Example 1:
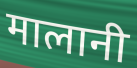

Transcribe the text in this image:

मालानी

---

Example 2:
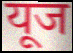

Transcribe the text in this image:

यूज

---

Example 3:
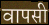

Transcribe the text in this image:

वापसी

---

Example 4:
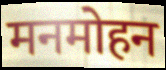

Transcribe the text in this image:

मनमोहन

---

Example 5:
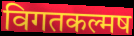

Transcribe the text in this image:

विगतकल्मष